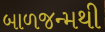
બાળજન્મથી